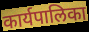
कार्यपालिका